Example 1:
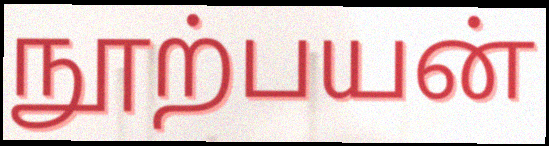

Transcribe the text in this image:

நூற்பயன்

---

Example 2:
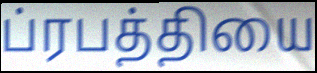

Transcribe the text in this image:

ப்ரபத்தியை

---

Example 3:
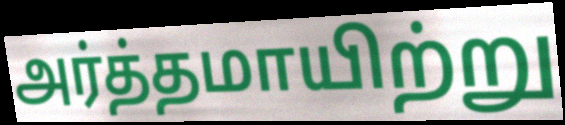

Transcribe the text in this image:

அர்த்தமாயிற்று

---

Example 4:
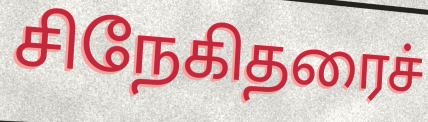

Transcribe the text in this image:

சிநேகிதரைச்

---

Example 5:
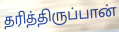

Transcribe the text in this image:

தரித்திருப்பான்